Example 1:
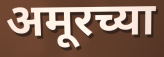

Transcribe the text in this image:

अमूरच्या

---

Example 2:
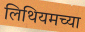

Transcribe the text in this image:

लिथियमच्या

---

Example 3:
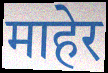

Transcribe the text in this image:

माहेर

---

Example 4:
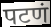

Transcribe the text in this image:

पटणं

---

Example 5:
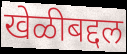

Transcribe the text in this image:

खेळीबद्दल